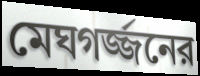
মেঘগর্জ্জনের